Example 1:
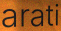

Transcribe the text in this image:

arati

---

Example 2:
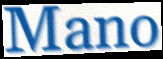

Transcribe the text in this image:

Mano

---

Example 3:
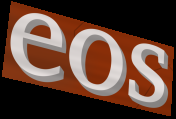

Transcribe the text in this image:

eos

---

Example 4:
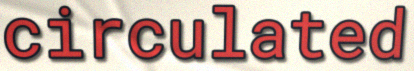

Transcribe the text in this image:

circulated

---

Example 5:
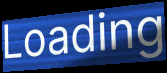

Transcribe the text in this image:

Loading